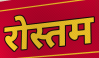
रोस्तम